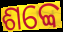
ଶବ୍ବେ